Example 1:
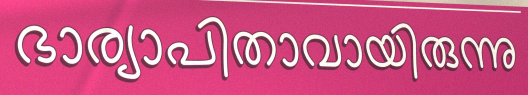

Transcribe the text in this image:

ഭാര്യാപിതാവായിരുന്നു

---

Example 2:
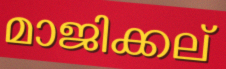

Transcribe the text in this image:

മാജിക്കല്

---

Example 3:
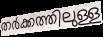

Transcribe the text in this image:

തർക്കത്തിലുള്ള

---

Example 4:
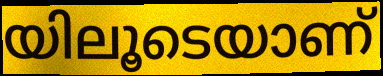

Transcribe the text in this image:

യിലൂടെയാണ്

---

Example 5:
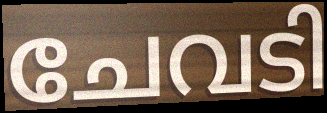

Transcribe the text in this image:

ചേവടി